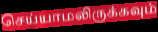
செய்யாமலிருக்கவும்